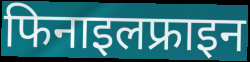
फिनाइलफ्राइन